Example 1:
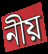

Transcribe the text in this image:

নীয়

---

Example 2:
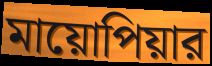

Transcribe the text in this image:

মায়োপিয়ার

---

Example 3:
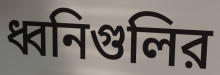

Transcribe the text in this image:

ধ্বনিগুলির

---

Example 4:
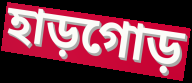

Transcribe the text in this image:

হাড়গোড়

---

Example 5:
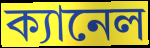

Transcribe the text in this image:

ক্যানেল